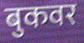
बुकवर